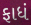
ફાધં